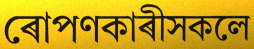
ৰোপণকাৰীসকলে